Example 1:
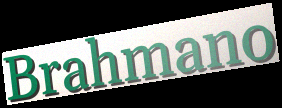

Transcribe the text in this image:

Brahmano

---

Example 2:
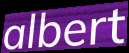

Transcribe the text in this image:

albert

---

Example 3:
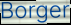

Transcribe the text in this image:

Borger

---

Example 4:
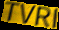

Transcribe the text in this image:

TVRI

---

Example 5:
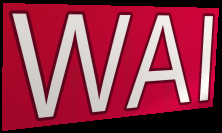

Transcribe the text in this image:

WAI